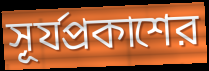
সূর্যপ্রকাশের